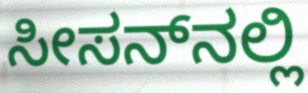
ಸೀಸನ್‌ನಲ್ಲಿ